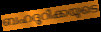
ബഹദൂറിക്കയുടെ